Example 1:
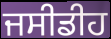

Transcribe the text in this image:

ਜਸੀਡੀਹ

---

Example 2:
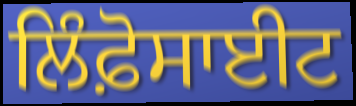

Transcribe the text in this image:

ਲਿੰਫ਼ੋਸਾਈਟ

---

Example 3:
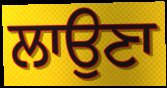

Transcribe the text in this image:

ਲਾਉਣਾ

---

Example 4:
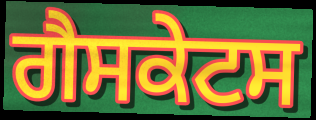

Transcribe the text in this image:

ਗੈਸਕੇਟਸ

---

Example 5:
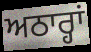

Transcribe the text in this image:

ਅਠਾਰ੍ਹਾਂ